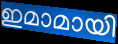
ഇമാമായി